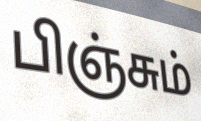
பிஞ்சும்